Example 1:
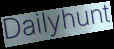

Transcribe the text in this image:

Dailyhunt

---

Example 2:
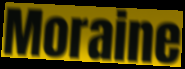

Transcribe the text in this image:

Moraine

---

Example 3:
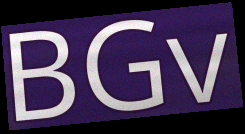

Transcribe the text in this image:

BGv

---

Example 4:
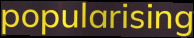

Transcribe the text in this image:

popularising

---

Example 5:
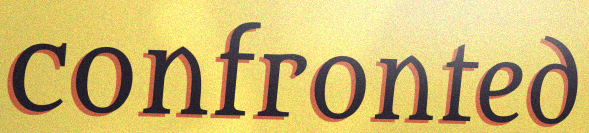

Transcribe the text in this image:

confronted